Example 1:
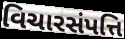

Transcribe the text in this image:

વિચારસંપત્તિ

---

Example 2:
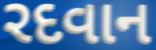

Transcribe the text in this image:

રદવાન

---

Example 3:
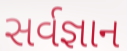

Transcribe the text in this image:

સર્વજ્ઞાન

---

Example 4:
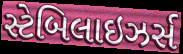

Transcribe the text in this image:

સ્ટેબિલાઇઝર્સ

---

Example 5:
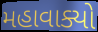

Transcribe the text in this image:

મહાવાક્યો